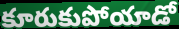
కూరుకుపోయాడో